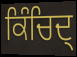
ਕਿੰਚਿਦ੍